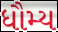
ધૌમ્ય